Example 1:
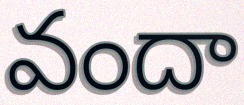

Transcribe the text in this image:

వందా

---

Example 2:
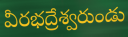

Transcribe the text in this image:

వీరభద్రేశ్వరుండు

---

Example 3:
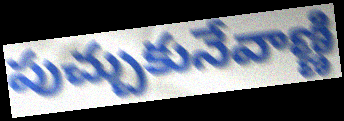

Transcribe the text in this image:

పుచ్చుకునేవాణ్ణి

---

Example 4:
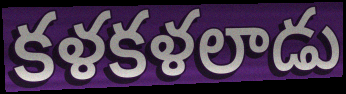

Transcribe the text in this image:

కళకళలాడు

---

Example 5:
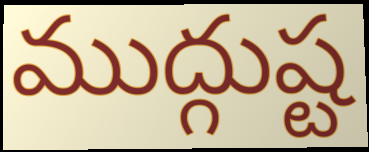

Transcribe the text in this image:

ముద్గుష్ట